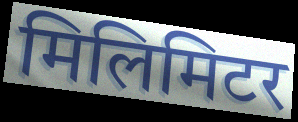
मिलिमिटर